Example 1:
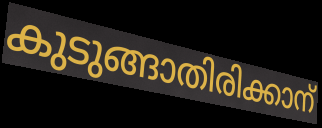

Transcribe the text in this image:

കുടുങ്ങാതിരിക്കാന്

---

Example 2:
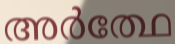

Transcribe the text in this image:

അർത്ഥേ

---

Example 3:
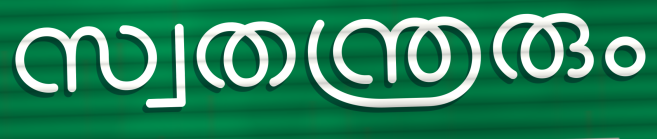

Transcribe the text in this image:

സ്വതന്ത്രരും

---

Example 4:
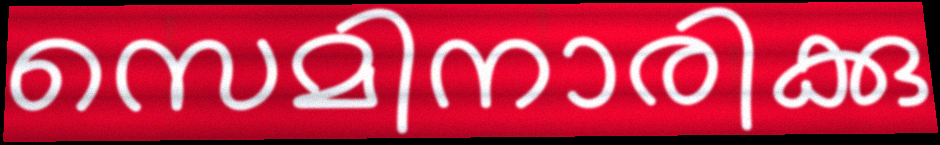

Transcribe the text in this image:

സെമിനാരിക്കു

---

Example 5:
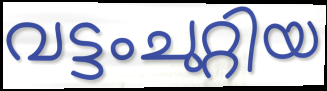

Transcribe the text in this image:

വട്ടംചുറ്റിയ